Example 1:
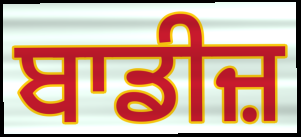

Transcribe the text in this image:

ਬਾਡੀਜ਼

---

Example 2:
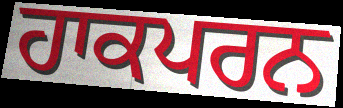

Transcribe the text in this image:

ਹਾਕਪਰਨ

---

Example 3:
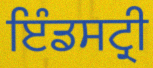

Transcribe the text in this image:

ਇੰਡਸਟ੍ਰੀ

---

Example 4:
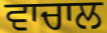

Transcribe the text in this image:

ਵਾਚਾਲ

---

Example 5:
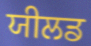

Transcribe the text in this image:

ਯੀਲਡ